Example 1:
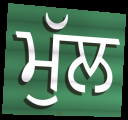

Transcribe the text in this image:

ਮੁੱਲ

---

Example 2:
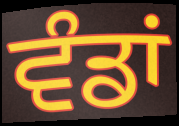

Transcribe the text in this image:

ਵੰਡਾਂ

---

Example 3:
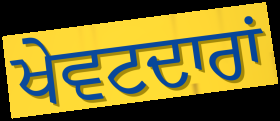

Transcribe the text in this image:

ਖੇਵਟਦਾਰਾਂ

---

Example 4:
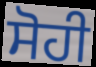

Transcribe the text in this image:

ਸੋਹੀ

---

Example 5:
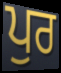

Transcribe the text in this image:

ਪੁਰ